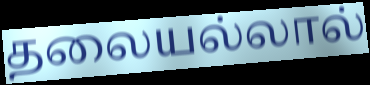
தலையல்லால்